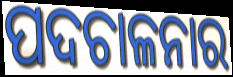
ପଦଚାଳନାର